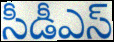
సీడీఎస్